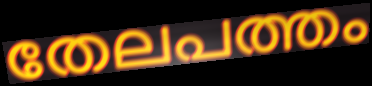
തേലപത്തം